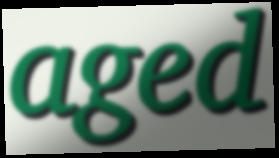
aged